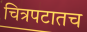
चित्रपटातच